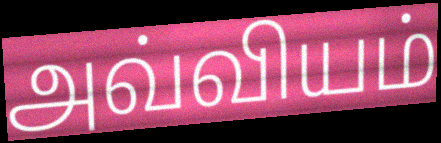
அவ்வியம்